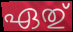
ഏതു്